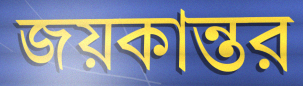
জয়কান্তর